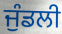
ਜੁੰਡਲੀ